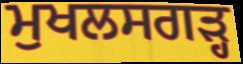
ਮੁਖਲਸਗੜ੍ਹ